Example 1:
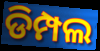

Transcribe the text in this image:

ଡିମ୍ପଲ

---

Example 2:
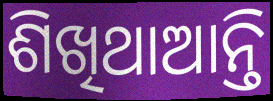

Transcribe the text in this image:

ଶିଖିଥାଆନ୍ତି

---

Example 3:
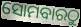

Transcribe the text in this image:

ସୋମବାରଠୁ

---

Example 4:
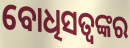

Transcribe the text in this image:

ବୋଧିସତ୍ୱଙ୍କର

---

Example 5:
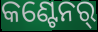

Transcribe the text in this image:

କଣ୍ଟେନର୍